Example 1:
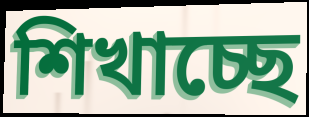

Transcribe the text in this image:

শিখাচ্ছে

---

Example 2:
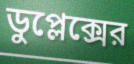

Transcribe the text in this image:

ডুপ্লেক্সের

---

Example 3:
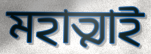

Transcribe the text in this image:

মহাত্মাই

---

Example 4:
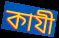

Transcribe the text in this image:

কাযী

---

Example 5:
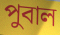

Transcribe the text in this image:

পুবাল